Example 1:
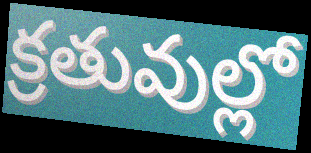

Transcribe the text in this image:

క్రతువుల్లో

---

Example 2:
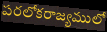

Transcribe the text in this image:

పరలోకరాజ్యములో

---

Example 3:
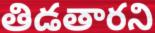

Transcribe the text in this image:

తిడతారని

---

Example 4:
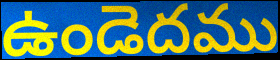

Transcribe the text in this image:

ఉండెదము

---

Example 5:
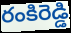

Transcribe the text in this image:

రంకిరెడ్డి